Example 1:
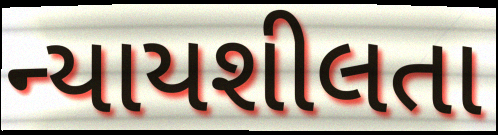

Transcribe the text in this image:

ન્યાયશીલતા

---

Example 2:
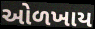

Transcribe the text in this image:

ઓળખાય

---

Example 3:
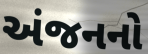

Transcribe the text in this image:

અંજનનો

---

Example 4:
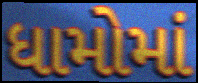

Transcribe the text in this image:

ધામોમાં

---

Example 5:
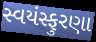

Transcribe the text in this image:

સ્વયંસ્ફુરણા